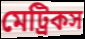
মেট্রিকস